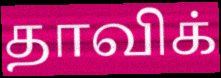
தாவிக்